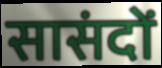
सासंदों